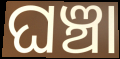
ଘଞ୍ଚା